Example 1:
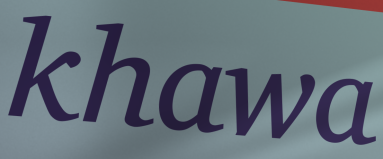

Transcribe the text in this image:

khawa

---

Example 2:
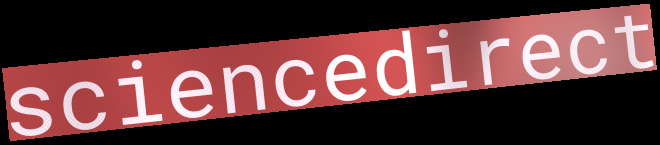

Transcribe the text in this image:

sciencedirect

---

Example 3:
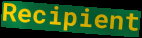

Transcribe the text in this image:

Recipient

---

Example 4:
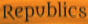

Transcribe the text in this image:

Republics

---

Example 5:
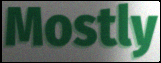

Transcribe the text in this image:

Mostly